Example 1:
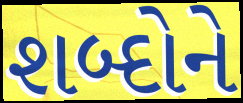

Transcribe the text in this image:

શબ્દોને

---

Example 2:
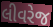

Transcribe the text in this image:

લીવરેજ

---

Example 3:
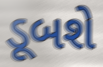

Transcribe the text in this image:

ડૂબશે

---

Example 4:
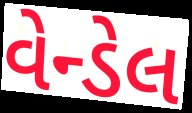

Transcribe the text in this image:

વેન્ડેલ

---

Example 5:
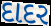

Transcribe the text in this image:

દાદર